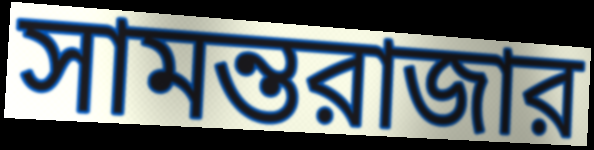
সামন্তরাজার